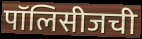
पॉलिसीजची